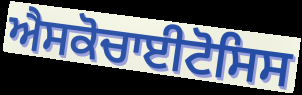
ਐਸਕੋਚਾਈਟੋਸਿਸ